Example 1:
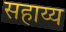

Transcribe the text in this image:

सहाय्य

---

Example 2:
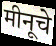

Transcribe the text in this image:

मीनूचे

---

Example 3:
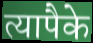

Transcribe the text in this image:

त्यापैके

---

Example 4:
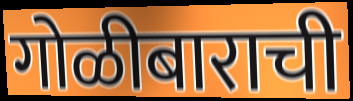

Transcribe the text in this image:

गोळीबाराची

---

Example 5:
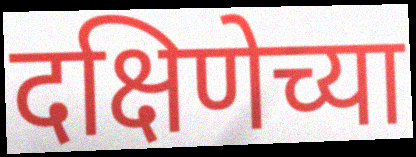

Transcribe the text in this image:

दक्षिणेच्या